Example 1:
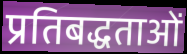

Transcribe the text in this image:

प्रतिबद्धताओं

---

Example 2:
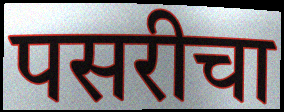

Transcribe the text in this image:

पसरीचा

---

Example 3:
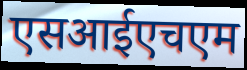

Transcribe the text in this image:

एसआईएचएम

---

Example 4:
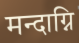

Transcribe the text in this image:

मन्दाग्नि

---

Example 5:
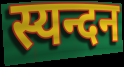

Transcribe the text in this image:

स्यन्दन